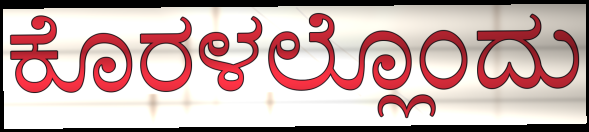
ಕೊರಳಲ್ಲೊಂದು